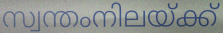
സ്വന്തംനിലയ്ക്ക്